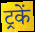
ट्रकें